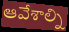
ఆవేశాల్ని